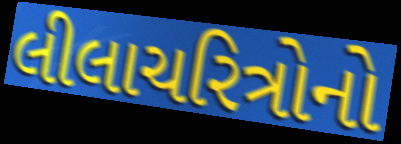
લીલાચરિત્રોનો